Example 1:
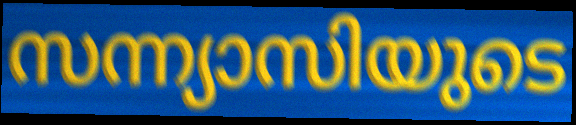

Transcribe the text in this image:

സന്ന്യാസിയുടെ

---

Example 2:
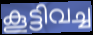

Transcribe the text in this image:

കൂട്ടിവച്ച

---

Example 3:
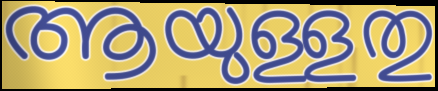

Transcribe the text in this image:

ആയുള്ളതു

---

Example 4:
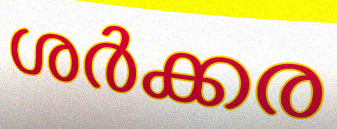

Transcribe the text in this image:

ശർക്കര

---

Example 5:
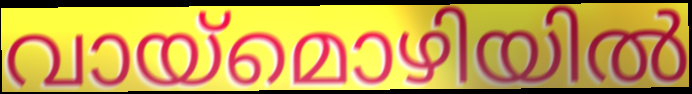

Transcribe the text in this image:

വായ്മൊഴിയിൽ